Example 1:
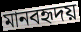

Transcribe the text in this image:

মানবহৃদয়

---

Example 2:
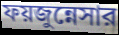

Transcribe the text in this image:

ফয়জুন্নেসার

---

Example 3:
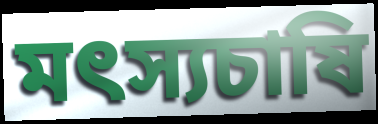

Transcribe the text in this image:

মৎস্যচাষি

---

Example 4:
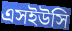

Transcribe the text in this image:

এসইউসি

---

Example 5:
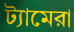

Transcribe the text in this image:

ট্যামেরা